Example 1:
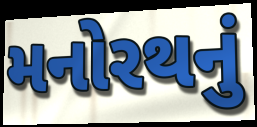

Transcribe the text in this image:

મનોરથનું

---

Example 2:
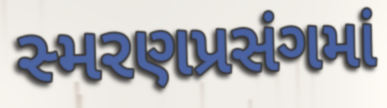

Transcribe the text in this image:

સ્મરણપ્રસંગમાં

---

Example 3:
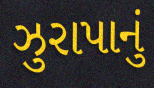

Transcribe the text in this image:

ઝુરાપાનું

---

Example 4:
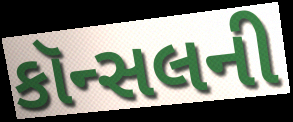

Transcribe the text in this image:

કૉન્સલની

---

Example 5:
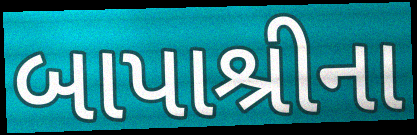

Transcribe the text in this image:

બાપાશ્રીના